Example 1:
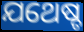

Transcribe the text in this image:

ଯଥେଷ୍ଚ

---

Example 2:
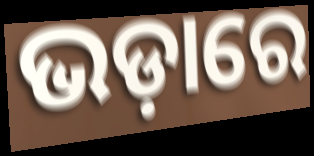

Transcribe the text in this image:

ଭଡ଼ାରେ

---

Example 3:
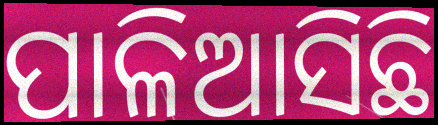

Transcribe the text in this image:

ପାଳିଆସିଛି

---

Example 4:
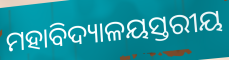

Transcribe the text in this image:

ମହାବିଦ୍ୟାଳୟସ୍ତରୀୟ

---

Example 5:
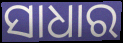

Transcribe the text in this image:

ସାଧାର